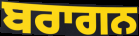
ਬਰਾਗਨ